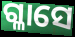
ଗ୍ଳାସେ